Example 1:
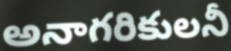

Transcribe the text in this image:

అనాగరికులనీ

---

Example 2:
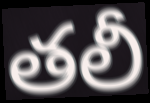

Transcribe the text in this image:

తలీ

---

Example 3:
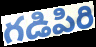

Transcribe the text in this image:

గడిపిరి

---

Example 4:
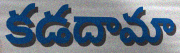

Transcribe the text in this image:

కడదామా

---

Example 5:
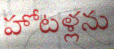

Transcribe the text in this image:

హోటళ్లను